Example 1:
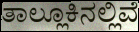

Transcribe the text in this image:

ತಾಲ್ಲೂಕಿನಲ್ಲಿವೆ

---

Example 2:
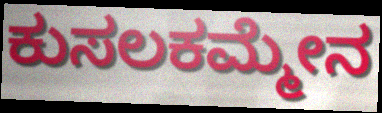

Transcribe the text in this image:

ಕುಸಲಕಮ್ಮೇನ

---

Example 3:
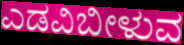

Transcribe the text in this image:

ಎಡವಿಬೀಳುವ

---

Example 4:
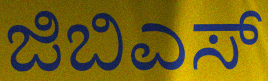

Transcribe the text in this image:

ಜಿಬಿಎಸ್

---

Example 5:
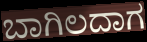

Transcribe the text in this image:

ಬಾಗಿಲದಾಗ